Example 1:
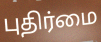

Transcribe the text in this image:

புதிர்மை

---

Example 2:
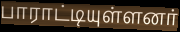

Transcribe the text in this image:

பாராட்டியுள்ளனர்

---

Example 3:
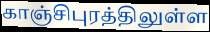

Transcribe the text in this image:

காஞ்சிபுரத்திலுள்ள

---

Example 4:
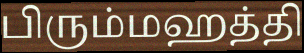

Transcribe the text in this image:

பிரும்மஹத்தி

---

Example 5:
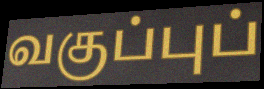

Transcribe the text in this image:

வகுப்புப்